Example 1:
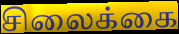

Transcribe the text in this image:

சிலைக்கை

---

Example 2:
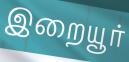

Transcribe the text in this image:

இறையூர்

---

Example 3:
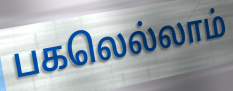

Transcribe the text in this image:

பகலெல்லாம்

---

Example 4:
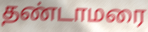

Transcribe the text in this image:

தண்டாமரை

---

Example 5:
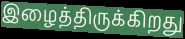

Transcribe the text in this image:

இழைத்திருக்கிறது